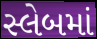
સ્લેબમાં